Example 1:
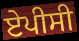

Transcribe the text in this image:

ਏਪੀਸੀ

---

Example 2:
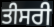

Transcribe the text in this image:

ਤੀਸਰੀ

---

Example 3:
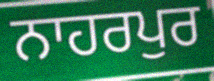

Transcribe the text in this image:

ਨਾਹਰਪੁਰ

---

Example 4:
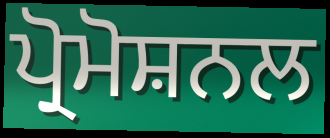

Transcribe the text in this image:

ਪ੍ਰੋਮੋਸ਼ਨਲ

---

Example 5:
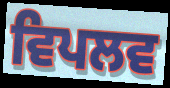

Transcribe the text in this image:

ਵਿਪਲਵ